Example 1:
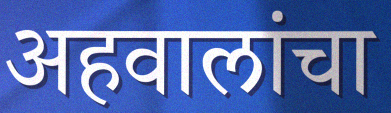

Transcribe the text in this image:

अहवालांचा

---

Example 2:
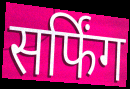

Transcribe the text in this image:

सर्फिंग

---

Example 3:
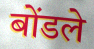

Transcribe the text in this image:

बोंडले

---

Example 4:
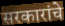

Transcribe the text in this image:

सरकारांचे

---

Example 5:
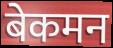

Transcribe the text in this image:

बेकमन